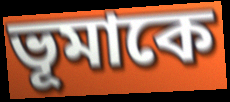
ভূমাকে